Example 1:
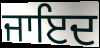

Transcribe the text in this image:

ਜਾਇਦ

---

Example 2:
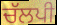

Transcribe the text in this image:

ਚੱਲਪੀ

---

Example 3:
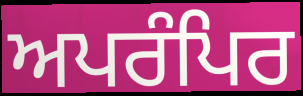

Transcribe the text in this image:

ਅਪਰੰਪਿਰ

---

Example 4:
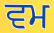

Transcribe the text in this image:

ਵਮ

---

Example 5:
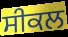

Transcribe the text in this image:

ਸੀਕਲ